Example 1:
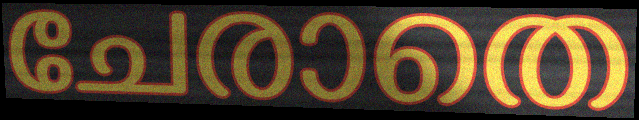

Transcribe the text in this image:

ചേരാതെ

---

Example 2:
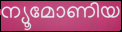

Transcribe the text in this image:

ന്യൂമോണിയ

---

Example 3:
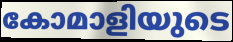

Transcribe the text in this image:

കോമാളിയുടെ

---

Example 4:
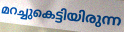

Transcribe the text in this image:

മറച്ചുകെട്ടിയിരുന്ന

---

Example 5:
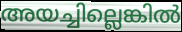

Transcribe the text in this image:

അയച്ചില്ലെങ്കിൽ